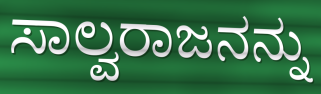
ಸಾಲ್ವರಾಜನನ್ನು